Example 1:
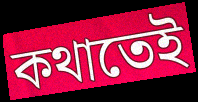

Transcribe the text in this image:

কথাতেই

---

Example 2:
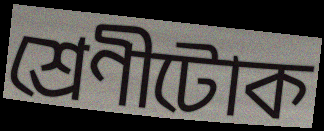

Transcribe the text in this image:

শ্ৰেণীটোক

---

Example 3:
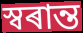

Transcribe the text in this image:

স্বৰান্ত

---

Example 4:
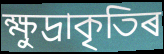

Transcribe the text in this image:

ক্ষুদ্ৰাকৃতিৰ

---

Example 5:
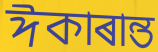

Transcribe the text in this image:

ঈকাৰান্ত